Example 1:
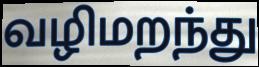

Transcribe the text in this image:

வழிமறந்து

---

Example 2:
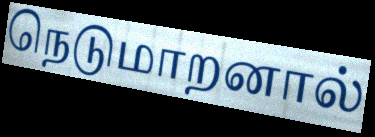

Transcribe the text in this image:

நெடுமாறனால்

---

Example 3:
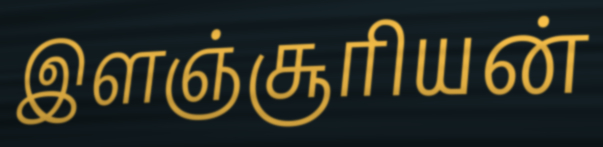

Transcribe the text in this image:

இளஞ்சூரியன்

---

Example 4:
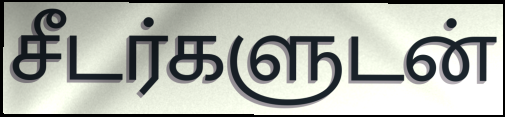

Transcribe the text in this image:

சீடர்களுடன்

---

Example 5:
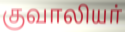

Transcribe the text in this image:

குவாலியர்